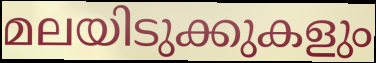
മലയിടുക്കുകളും